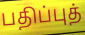
பதிப்புத்